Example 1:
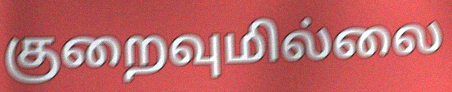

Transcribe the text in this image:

குறைவுமில்லை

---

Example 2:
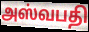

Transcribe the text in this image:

அஸ்வபதி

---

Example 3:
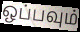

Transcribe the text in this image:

ஒப்பவும்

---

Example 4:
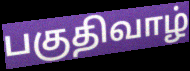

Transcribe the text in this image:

பகுதிவாழ்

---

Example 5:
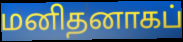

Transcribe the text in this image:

மனிதனாகப்